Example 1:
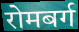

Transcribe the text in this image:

रोमबर्ग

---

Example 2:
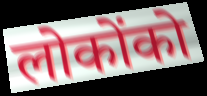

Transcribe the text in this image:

लोकोंको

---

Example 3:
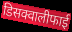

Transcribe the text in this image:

डिसक्वालीफाई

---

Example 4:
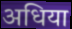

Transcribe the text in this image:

अधिया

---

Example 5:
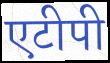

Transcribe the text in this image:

एटीपी